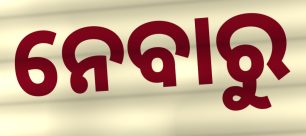
ନେବାରୁ